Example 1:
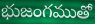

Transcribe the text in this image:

భుజంగముతో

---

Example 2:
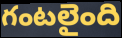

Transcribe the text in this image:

గంటలైంది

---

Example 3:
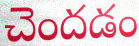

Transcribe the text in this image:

చెందడం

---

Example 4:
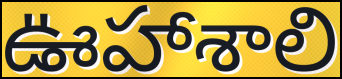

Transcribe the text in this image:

ఊహాశాలి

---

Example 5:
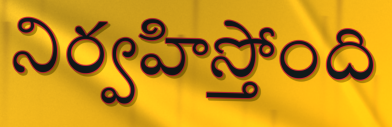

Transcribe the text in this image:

నిర్వహిస్తోంది